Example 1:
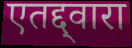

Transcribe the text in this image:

एतद्द्वारा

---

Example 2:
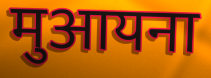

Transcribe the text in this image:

मुआयना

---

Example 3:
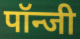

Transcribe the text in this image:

पॉन्जी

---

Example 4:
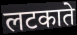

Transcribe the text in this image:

लटकाते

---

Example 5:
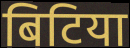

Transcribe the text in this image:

बिटिया